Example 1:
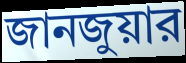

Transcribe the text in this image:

জানজুয়ার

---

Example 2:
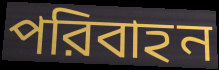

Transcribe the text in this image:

পরিবাহন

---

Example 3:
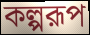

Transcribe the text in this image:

কল্পরূপ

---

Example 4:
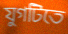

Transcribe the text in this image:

যুগটিতে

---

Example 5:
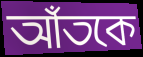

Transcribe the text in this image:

আঁতকে